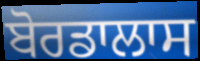
ਬੋਰਡਾਲਾਸ